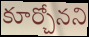
కూర్చోనని